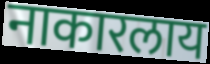
नाकारलाय